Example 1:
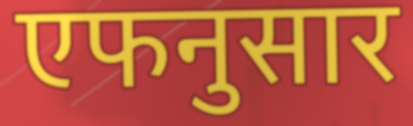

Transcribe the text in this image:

एफनुसार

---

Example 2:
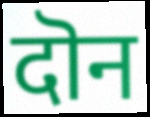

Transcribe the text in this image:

दॊन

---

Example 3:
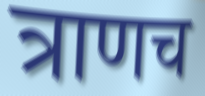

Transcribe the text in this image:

त्राणच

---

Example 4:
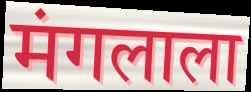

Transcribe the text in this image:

मंगलाला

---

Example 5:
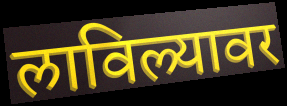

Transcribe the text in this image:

लाविल्यावर